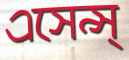
এসেন্স্